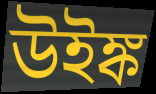
উইঙ্ক